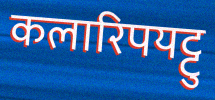
कलारिपयट्टु